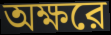
অক্ষরে